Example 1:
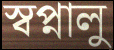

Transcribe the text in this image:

স্বপ্নালু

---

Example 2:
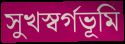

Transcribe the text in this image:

সুখস্বর্গভূমি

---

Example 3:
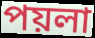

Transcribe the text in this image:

পয়লা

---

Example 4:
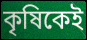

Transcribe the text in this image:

কৃষিকেই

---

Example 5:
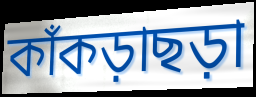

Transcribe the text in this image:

কাঁকড়াছড়া